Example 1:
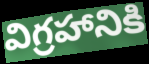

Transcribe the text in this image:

విగ్రహానికి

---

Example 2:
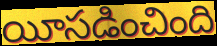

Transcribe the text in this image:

యీసడించింది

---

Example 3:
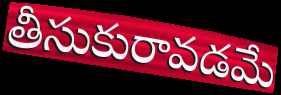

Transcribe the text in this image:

తీసుకురావడమే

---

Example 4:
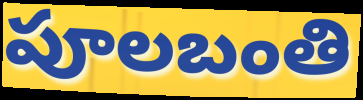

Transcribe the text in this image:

పూలబంతి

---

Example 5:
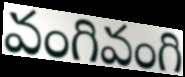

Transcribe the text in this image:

వంగివంగి